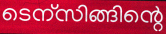
ടെന്സിങ്ങിന്റെ